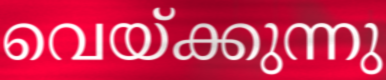
വെയ്ക്കുന്നു